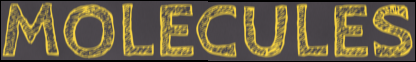
MOLECULES